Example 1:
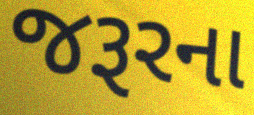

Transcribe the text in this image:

જરૂરના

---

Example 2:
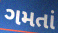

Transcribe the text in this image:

ગમતાં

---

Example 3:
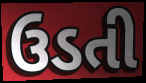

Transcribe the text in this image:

ઉડતી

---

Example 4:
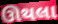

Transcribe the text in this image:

ઊથલા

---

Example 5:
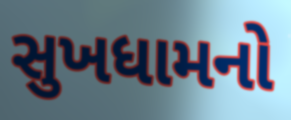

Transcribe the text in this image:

સુખધામનો